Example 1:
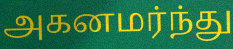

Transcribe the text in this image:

அகனமர்ந்து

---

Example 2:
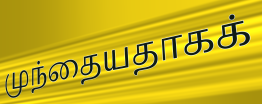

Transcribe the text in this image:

முந்தையதாகக்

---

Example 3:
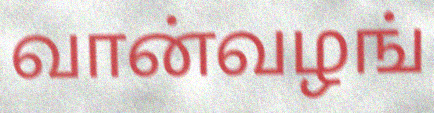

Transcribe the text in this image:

வான்வழங்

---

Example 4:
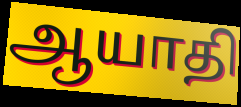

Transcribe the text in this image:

ஆயாதி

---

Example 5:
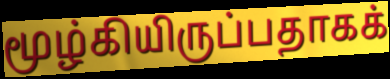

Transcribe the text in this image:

மூழ்கியிருப்பதாகக்